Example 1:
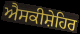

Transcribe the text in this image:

ਐਸਕੀਸ਼ੇਹਿਰ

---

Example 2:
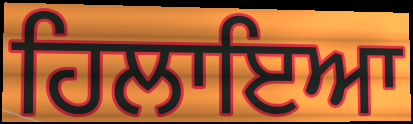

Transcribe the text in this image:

ਹਿਲਾਇਆ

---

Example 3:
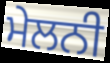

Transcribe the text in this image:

ਮੇਲਨੀ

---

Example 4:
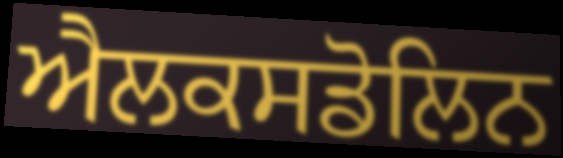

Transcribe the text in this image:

ਐਲਕਸਡੋਲਿਨ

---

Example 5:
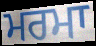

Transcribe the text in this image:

ਮਰਮਾ